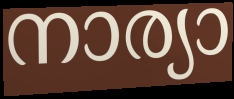
നാര്യാ